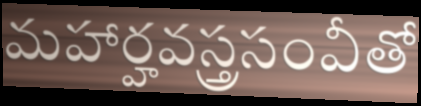
మహార్హవస్త్రసంవీతో